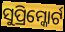
ସୁପ୍ରିମ୍କୋର୍ଟ